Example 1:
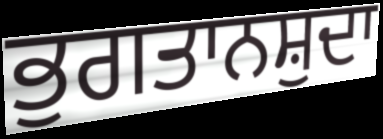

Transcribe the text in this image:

ਭੁਗਤਾਨਸ਼ੁਦਾ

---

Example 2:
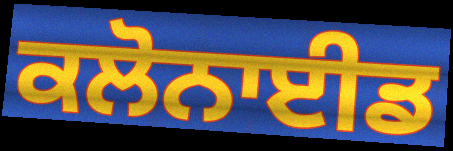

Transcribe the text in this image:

ਕਲੋਨਾਈਡ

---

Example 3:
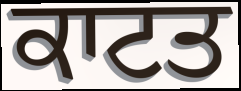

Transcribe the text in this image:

ਕਾਟਤ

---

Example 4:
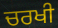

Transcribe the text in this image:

ਚਰਖੀ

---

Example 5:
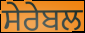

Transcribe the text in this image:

ਸੇਰੇਬਲ